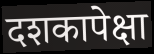
दशकापेक्षा